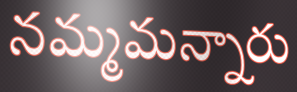
నమ్మమన్నారు